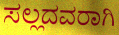
ಸಲ್ಲದವರಾಗಿ